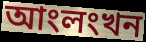
আংলংখন